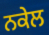
ਨਕੇਲ